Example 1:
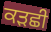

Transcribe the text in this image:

ਕੜਛੀ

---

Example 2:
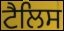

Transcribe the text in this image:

ਟੈਲਿਸ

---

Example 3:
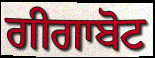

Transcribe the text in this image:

ਗੀਗਾਬੋਟ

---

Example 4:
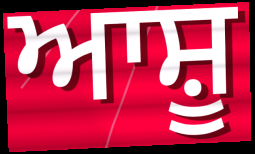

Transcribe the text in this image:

ਆਸ਼ੂ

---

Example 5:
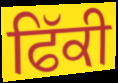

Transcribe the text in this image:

ਫਿੱਕੀ